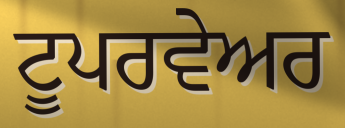
ਟੂਪਰਵੇਅਰ